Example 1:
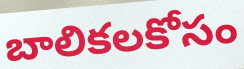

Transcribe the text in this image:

బాలికలకోసం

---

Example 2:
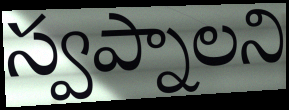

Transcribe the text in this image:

స్వప్నాలని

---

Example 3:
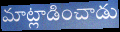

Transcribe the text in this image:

మాట్లాడించాడు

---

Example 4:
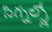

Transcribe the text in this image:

సిగ్నల్స్లో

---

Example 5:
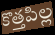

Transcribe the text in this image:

కొత్తపిల్ల